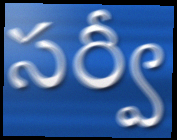
సర్వీ